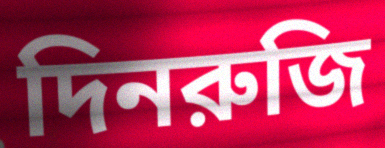
দিনরুজি